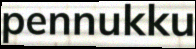
pennukku